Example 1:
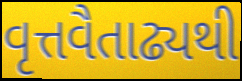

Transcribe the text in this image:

વૃત્તવૈતાઢ્યથી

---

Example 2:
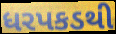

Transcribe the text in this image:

ધરપકડથી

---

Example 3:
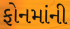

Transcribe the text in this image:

ફોનમાંની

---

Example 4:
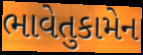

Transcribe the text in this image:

ભાવેતુકામેન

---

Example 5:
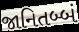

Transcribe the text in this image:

જાનિતબ્બં